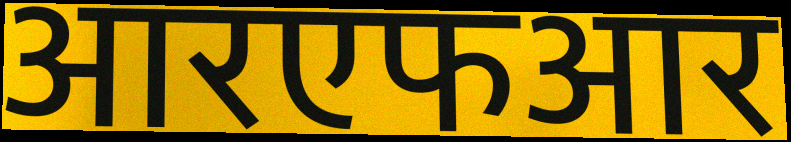
आरएफआर